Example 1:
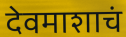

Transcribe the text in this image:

देवमाशाचं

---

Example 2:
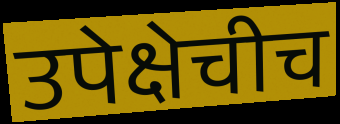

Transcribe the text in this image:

उपेक्षेचीच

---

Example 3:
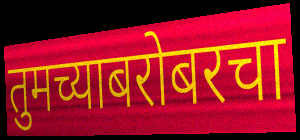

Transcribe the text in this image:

तुमच्याबरोबरचा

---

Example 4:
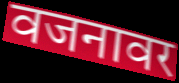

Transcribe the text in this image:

वजनावर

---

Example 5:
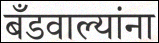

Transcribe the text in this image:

बँडवाल्यांना